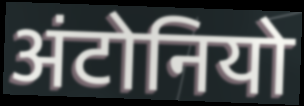
अंटोनियो